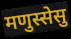
मणुस्सेसु